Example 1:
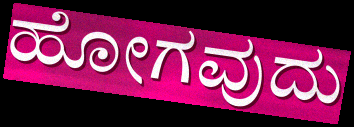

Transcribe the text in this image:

ಹೋಗವುದು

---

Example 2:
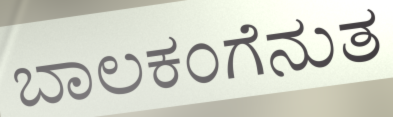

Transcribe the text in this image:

ಬಾಲಕಂಗೆನುತ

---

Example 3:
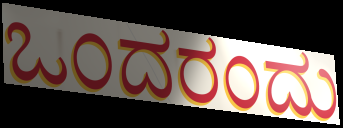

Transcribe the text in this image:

ಒಂದರಂದು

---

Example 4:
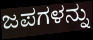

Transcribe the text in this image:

ಜಪಗಳನ್ನು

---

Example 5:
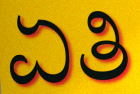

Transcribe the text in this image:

ಏತಿ